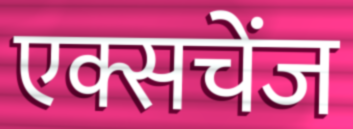
एक्सचेंज